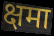
क्षमा